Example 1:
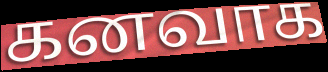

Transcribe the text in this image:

கனவாக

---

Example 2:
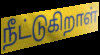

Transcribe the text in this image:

நீட்டுகிறாள்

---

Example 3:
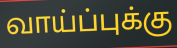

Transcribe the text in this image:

வாய்ப்புக்கு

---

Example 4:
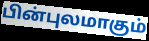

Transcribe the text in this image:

பின்புலமாகும்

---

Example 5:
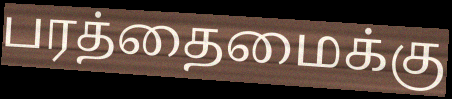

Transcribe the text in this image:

பரத்தைமைக்கு